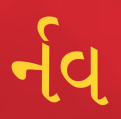
ર્નવ